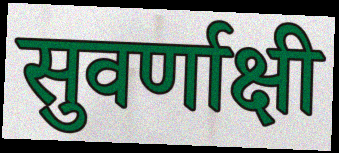
सुवर्णाक्षी